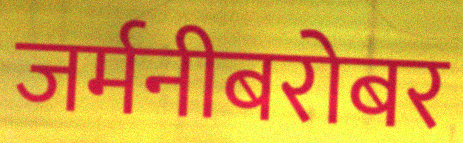
जर्मनीबरोबर